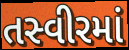
તસ્વીરમાં